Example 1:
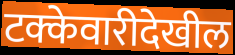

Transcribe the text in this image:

टक्केवारीदेखील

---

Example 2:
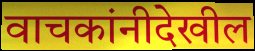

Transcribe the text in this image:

वाचकांनीदेखील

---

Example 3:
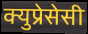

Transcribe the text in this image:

क्युप्रेसेसी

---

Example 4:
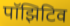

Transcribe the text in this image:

पॉझिटिव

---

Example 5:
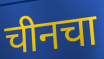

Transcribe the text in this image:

चीनचा